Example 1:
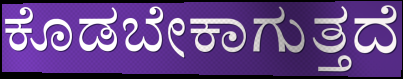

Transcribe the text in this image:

ಕೊಡಬೇಕಾಗುತ್ತದೆ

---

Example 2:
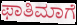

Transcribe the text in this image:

ಫಾತಿಮಾಗೆ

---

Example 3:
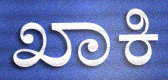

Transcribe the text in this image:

ಖಾಕಿ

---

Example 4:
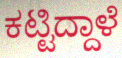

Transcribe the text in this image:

ಕಟ್ಟಿದ್ದಾಳೆ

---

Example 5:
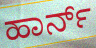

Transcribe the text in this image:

ಹಾರ್ನ್